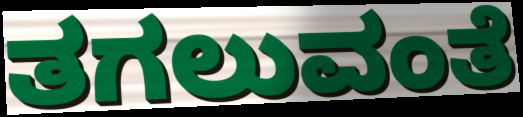
ತಗಲುವಂತೆ